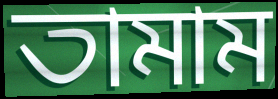
তামাম